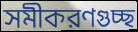
সমীকরণগুচ্ছ